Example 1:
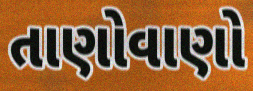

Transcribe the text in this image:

તાણોવાણો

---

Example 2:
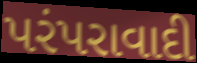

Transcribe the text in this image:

પરંપરાવાદી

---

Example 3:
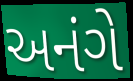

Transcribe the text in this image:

અનંગે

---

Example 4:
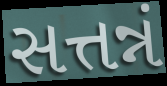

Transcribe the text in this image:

સત્તન્નં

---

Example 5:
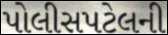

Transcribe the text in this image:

પોલીસપટેલની